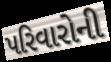
પરિવારોની